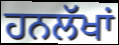
ਹਨਲੱਖਾਂ